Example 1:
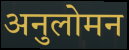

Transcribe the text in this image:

अनुलोमन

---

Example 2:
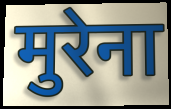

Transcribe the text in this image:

मुरेना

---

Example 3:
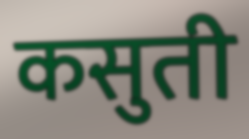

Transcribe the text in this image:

कसुती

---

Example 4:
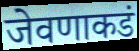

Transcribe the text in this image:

जेवणाकडं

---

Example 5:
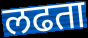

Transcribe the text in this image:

लढता